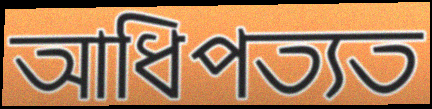
আধিপত্যত